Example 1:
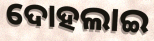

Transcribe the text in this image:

ଦୋହଲାଇ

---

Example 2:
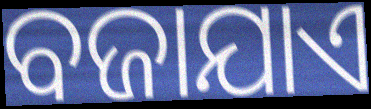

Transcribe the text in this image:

ବଜାଯାଏ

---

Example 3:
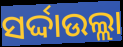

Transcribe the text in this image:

ସର୍ଦ୍ଦାଉଲ୍ଲା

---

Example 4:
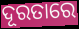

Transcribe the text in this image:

ଦୂରତାରେ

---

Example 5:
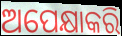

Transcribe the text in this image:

ଅପେକ୍ଷାକରି